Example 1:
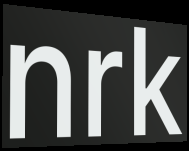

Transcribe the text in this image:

nrk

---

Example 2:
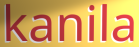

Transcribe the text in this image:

kanila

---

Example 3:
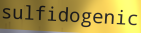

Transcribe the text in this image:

sulfidogenic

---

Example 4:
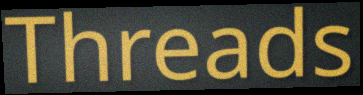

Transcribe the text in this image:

Threads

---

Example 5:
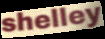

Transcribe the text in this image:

shelley